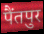
पैंतपुर